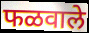
फळवाले